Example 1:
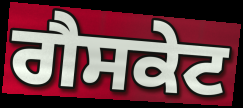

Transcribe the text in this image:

ਗੈਸਕੇਟ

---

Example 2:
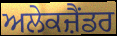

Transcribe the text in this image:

ਅਲੇਕਜ਼ੈਂਡਰ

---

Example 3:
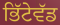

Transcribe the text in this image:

ਭਿੱਟੇਵੱਡ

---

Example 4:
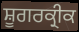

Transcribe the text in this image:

ਸ਼ੂਗਰਕ੍ਰੀਕ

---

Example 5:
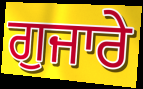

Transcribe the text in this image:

ਗੁਜਾਰੇ